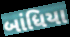
બાંધિયા